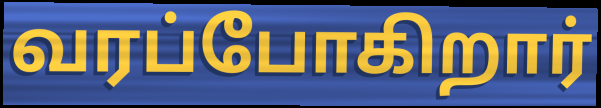
வரப்போகிறார்